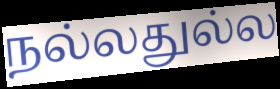
நல்லதுல்ல